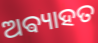
ଅଵ୍ୟାହତ